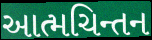
આત્મચિન્તન